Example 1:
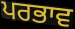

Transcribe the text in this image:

ਪਰਭਾਵ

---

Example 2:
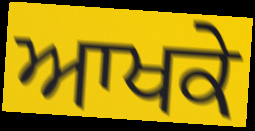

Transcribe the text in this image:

ਆਖਕੇ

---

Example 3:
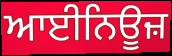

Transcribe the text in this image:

ਆਈਨਿਊਜ਼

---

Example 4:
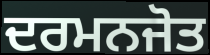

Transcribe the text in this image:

ਦਰਮਨਜੋਤ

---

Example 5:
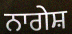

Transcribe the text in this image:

ਨਾਗੇਸ਼